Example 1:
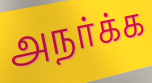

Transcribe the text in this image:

அநர்க்க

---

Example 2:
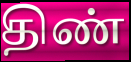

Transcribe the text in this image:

திண்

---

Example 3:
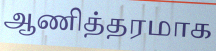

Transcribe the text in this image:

ஆணித்தரமாக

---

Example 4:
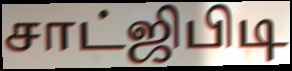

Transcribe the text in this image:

சாட்ஜிபிடி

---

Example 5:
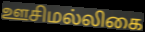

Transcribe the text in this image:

ஊசிமல்லிகை